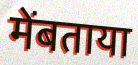
मेंबताया